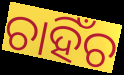
ଚାହିଁଚ